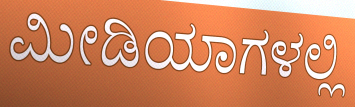
ಮೀಡಿಯಾಗಳಲ್ಲಿ